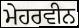
ਮੇਹਰਵੀਨ